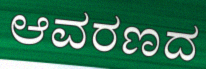
ಆವರಣದ